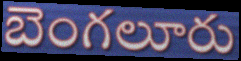
బెంగలూరు